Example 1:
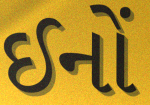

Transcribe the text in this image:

ઈનોં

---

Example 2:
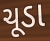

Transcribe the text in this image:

ચૂડા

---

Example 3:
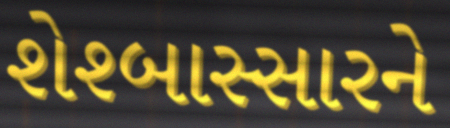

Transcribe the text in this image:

શેશ્બાસ્સારને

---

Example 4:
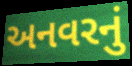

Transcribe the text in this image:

અનવરનું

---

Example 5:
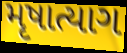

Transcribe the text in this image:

મૃષાત્યાગ